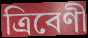
ত্ৰিবেণী